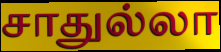
சாதுல்லா